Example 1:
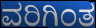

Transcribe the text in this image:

ವರಿಗಿಂತ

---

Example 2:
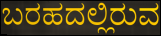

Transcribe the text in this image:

ಬರಹದಲ್ಲಿರುವ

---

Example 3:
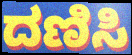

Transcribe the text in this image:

ದಣಿಸಿ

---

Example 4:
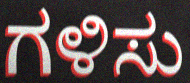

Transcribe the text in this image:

ಗಳಿಸು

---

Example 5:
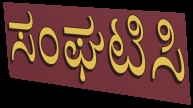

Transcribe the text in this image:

ಸಂಘಟಿಸಿ